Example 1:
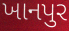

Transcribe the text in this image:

ખાનપુર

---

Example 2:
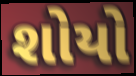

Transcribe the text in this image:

શોયો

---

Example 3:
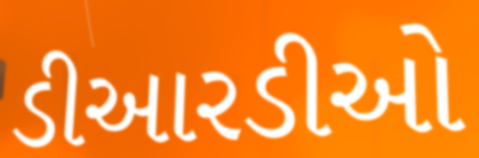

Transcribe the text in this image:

ડીઆરડીઓ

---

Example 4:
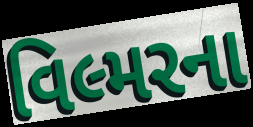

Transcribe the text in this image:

વિલ્મરના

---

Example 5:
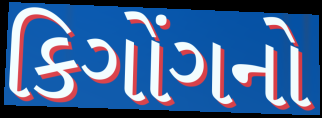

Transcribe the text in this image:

કિગોંગનો